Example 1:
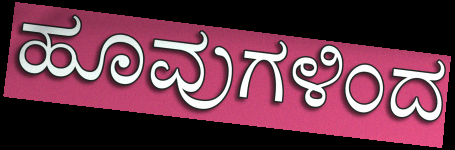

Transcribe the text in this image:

ಹೂವುಗಳಿಂದ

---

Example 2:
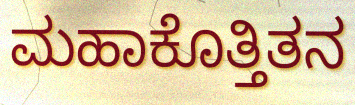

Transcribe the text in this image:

ಮಹಾಕೊತ್ತಿತನ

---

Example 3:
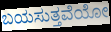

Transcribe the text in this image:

ಬಯಸುತ್ತವೆಯೋ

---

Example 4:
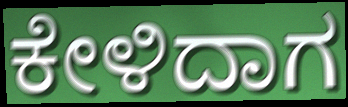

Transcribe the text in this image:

ಕೇಳಿದಾಗ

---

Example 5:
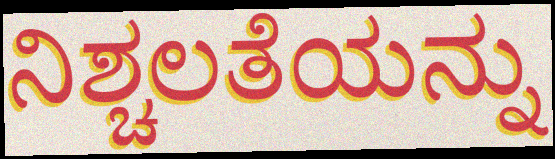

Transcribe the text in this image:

ನಿಶ್ಚಲತೆಯನ್ನು